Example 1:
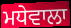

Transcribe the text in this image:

ਮਧੇਵਾਲਾ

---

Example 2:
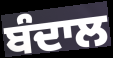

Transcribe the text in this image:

ਬੰਦਾਲ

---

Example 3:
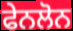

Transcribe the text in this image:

ਫੇਨਲੋਨ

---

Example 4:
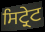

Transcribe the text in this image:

ਸਿਟ੍ਰੇਟ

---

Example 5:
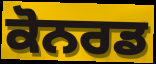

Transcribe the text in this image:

ਕੋਨਰਡ